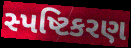
સ્પષ્ટિકરણ